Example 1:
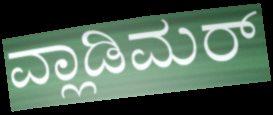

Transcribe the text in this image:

ವ್ಲಾಡಿಮರ್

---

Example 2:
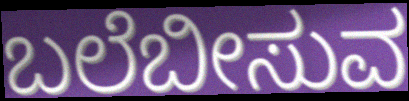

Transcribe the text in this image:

ಬಲೆಬೀಸುವ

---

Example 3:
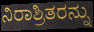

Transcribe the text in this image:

ನಿರಾಶ್ರಿತರನ್ನು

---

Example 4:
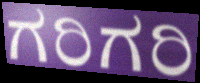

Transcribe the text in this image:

ಗರಿಗರಿ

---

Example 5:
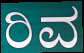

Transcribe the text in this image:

ರಿವ